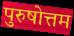
पुरुषोत्तम